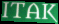
ITAK